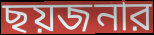
ছয়জনার